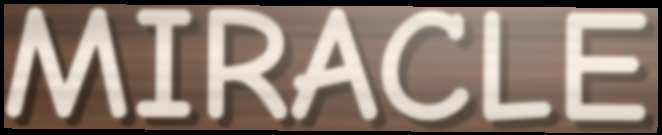
MIRACLE